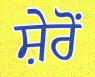
ਸ਼ੇਰੋਂ